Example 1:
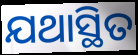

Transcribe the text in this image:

ଯଥାସ୍ଥିତ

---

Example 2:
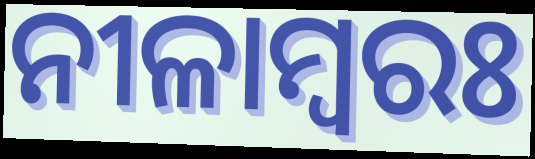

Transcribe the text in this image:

ନୀଳାମ୍ବରଃ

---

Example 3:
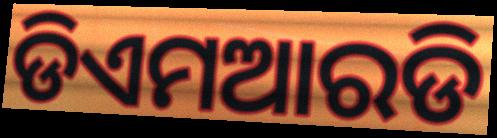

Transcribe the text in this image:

ଡିଏମଆରଡି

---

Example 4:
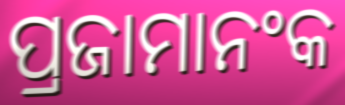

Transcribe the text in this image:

ପ୍ରଜାମାନଂକ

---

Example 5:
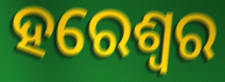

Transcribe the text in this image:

ହରେଶ୍ୱର